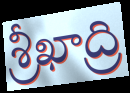
శ్రీఖాద్రి